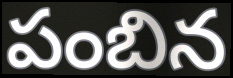
పంబిన